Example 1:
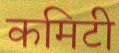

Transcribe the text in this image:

कमिटी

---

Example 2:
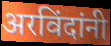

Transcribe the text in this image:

अरविंदांनी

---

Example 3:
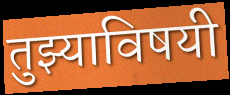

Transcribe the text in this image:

तुझ्याविषयी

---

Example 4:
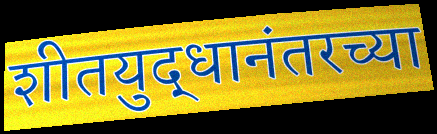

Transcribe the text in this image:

शीतयुद्धानंतरच्या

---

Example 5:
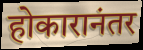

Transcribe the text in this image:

होकारानंतर